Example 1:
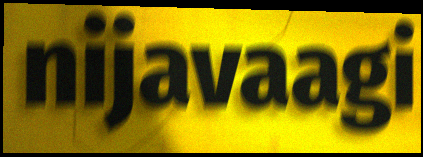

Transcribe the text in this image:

nijavaagi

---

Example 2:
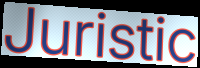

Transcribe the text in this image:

Juristic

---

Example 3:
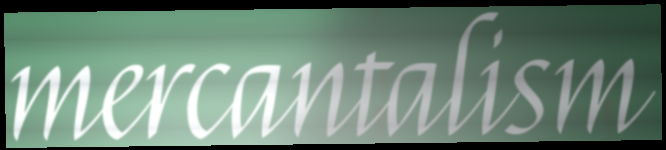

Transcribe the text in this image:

mercantalism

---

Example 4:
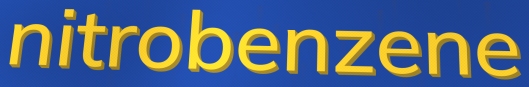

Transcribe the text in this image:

nitrobenzene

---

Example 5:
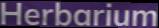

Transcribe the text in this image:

Herbarium